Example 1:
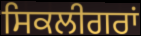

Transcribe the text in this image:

ਸਿਕਲੀਗਰਾਂ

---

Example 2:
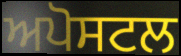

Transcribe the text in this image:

ਅਪੋਸਟਲ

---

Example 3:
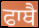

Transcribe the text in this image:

ਫਾਥੈ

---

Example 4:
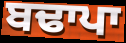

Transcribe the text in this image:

ਬਢਾਪਾ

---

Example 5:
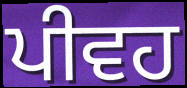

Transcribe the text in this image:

ਪੀਵਹ